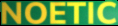
NOETIC